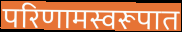
परिणामस्वरूपात